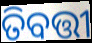
ତିବତ୍ତୀ